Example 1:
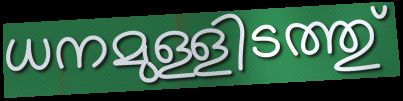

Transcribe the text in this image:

ധനമുള്ളിടത്തു്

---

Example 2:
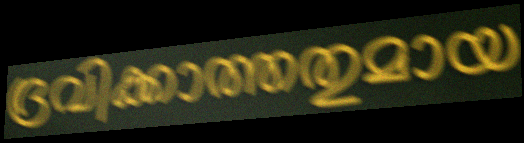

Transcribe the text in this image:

ദ്രവിക്കാത്തതുമായ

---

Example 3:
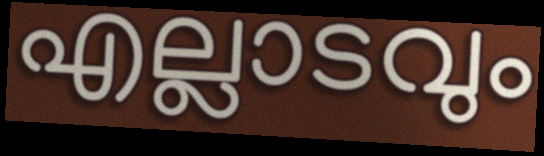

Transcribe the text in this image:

എല്ലാടവും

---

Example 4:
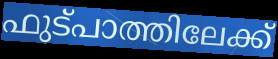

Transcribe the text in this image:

ഫുട്പാത്തിലേക്ക്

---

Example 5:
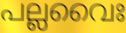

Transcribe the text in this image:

പല്ലവൈഃ